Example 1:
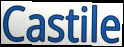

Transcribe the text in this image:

Castile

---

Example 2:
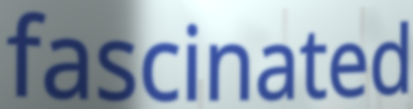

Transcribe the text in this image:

fascinated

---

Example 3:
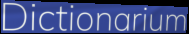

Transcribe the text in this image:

Dictionarium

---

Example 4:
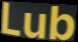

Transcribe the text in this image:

Lub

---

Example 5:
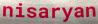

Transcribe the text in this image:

nisaryan